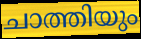
ചാത്തിയും